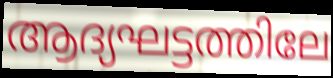
ആദ്യഘട്ടത്തിലേ